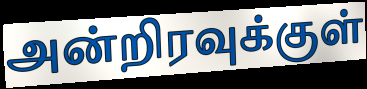
அன்றிரவுக்குள்